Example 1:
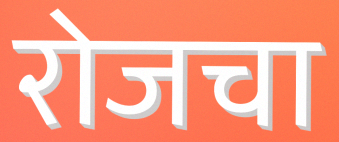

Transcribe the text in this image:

रोजचा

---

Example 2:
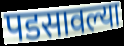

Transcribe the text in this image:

पडसावल्या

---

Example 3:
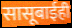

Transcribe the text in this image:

सासूबाईही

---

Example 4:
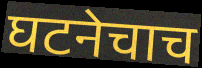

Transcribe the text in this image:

घटनेचाच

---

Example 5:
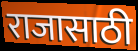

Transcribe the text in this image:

राजासाठी